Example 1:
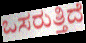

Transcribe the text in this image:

ಒಸರುತ್ತಿದೆ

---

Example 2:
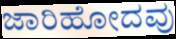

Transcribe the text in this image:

ಜಾರಿಹೋದವು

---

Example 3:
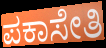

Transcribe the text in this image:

ಪಕಾಸೇತಿ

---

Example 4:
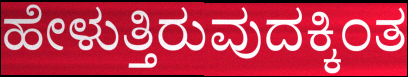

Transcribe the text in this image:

ಹೇಳುತ್ತಿರುವುದಕ್ಕಿಂತ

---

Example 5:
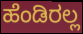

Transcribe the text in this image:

ಹೆಂಡಿರಲ್ಲ